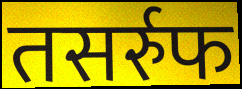
तसर्रुफ